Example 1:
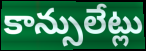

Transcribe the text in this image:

కాన్సులేట్లు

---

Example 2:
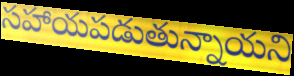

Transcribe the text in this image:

సహాయపడుతున్నాయని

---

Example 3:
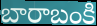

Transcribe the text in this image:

బారాబంకి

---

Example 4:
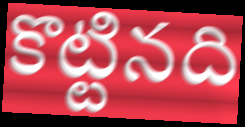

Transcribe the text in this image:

కొట్టినది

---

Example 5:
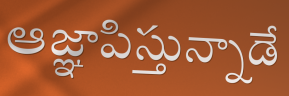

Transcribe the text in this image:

ఆజ్ఞాపిస్తున్నాడే